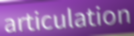
articulation